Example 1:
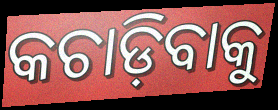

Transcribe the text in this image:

କଚାଡ଼ିବାକୁ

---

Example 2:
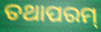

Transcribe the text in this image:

ତଥାପରମ୍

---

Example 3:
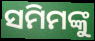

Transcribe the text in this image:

ସମିମଙ୍କୁ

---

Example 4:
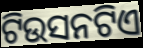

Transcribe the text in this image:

ଟିଉସନଟିଏ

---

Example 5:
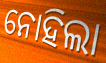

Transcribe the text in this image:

ନୋହିଲା